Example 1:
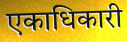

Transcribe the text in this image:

एकाधिकारी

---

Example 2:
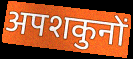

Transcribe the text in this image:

अपशकुनों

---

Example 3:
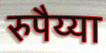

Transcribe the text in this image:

रुपैय्या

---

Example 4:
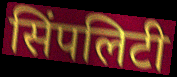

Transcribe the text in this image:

सिंपलिटी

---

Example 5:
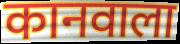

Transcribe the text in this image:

कानवाला